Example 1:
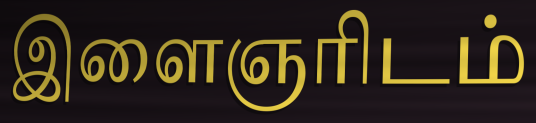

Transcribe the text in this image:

இளைஞரிடம்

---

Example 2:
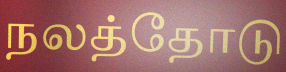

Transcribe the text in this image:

நலத்தோடு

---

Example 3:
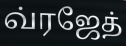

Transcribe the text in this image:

வ்ரஜேத்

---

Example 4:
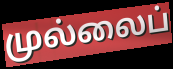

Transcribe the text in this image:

முல்லைப்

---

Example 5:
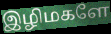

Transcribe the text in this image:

இழிமகளே